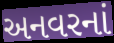
અનવરનાં